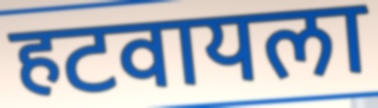
हटवायला